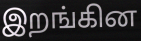
இறங்கின